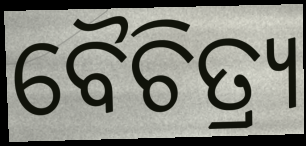
ବୈଚିତ୍ର୍ୟ